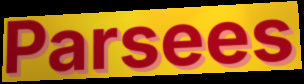
Parsees